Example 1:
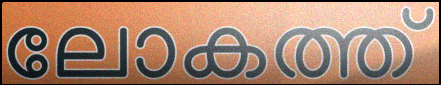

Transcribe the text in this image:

ലോകത്ത്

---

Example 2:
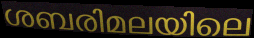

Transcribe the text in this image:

ശബരിമലയിലെ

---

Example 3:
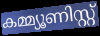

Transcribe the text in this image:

കമ്മ്യൂണിസ്റ്റ്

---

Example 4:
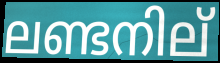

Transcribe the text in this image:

ലണ്ടനില്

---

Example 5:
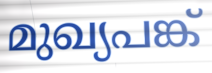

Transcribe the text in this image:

മുഖ്യപങ്ക്